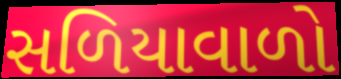
સળિયાવાળો